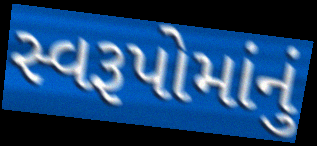
સ્વરૂપોમાંનું